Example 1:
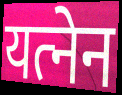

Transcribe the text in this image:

यत्‍नेन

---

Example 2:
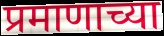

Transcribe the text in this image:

प्रमाणाच्या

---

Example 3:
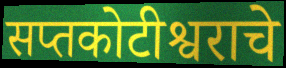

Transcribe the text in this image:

सप्तकोटीश्वराचे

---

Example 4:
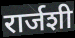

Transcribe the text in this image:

रार्जशी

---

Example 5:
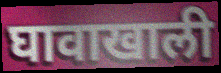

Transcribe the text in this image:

घावाखाली